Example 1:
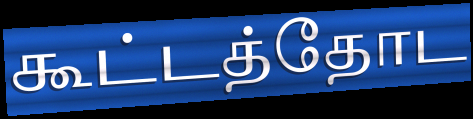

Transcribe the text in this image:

கூட்டத்தோட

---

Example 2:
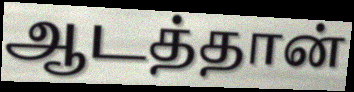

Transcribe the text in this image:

ஆடத்தான்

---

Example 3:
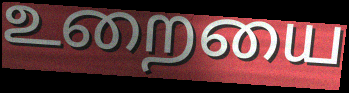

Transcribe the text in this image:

உறையை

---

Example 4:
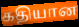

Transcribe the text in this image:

கதியான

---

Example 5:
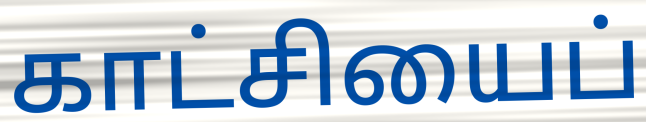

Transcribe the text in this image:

காட்சியைப்